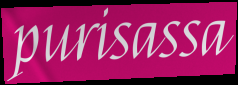
purisassa